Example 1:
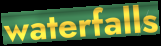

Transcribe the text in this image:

waterfalls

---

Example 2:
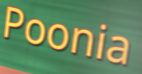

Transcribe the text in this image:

Poonia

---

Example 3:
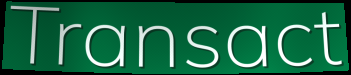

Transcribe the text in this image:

Transact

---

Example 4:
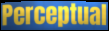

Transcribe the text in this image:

Perceptual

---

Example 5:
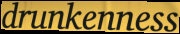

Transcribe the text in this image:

drunkenness